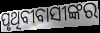
ପୃଥିବୀବାସୀଙ୍କର